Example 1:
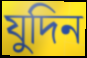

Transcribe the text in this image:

যুদিন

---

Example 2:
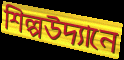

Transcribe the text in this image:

শিল্পউদ্যানে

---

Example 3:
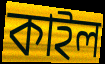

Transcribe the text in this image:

কাইল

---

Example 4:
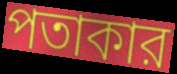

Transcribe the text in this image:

পতাকার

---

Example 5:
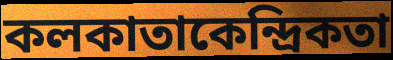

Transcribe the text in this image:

কলকাতাকেন্দ্রিকতা